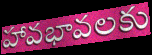
హావభావలకు